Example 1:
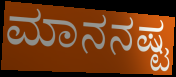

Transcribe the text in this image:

ಮಾನನಷ್ಟ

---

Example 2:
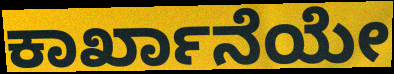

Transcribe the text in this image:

ಕಾರ್ಖಾನೆಯೇ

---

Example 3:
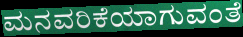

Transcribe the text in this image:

ಮನವರಿಕೆಯಾಗುವಂತೆ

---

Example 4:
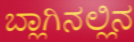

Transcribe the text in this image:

ಬ್ಲಾಗಿನಲ್ಲಿನ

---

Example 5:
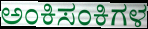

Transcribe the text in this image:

ಅಂಕಿಸಂಕಿಗಳ